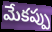
మేకప్పు